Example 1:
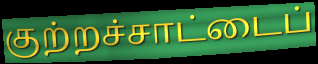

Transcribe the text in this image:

குற்றச்சாட்டைப்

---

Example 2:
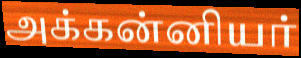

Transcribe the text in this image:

அக்கன்னியர்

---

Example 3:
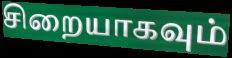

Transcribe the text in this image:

சிறையாகவும்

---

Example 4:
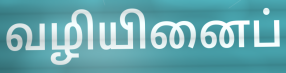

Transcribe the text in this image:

வழியினைப்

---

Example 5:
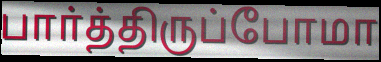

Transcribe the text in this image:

பார்த்திருப்போமா